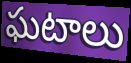
ఘటాలు